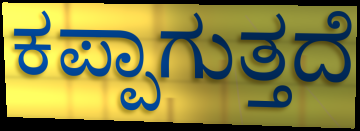
ಕಪ್ಪಾಗುತ್ತದೆ